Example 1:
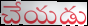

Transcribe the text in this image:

చేయడు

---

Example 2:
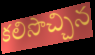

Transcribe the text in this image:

కలిసొచ్చిన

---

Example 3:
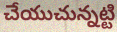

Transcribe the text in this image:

చేయుచున్నట్టి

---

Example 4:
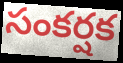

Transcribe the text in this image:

సంకర్షక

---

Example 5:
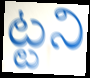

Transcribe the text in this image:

ట్టని